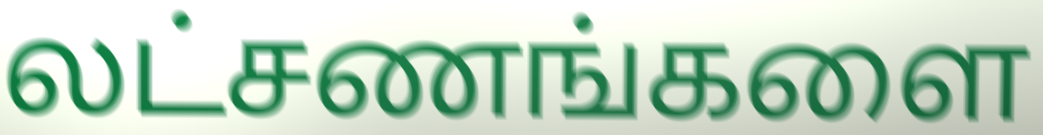
லட்சணங்களை